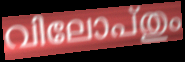
വിലോപ്തും